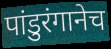
पांडुरंगानेच